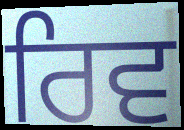
ਰਿਵ